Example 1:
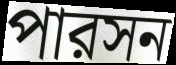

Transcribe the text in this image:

পারসন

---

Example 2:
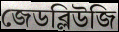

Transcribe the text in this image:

জেডব্লিউজি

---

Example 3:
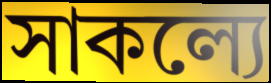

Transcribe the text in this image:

সাকল্যে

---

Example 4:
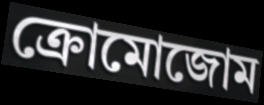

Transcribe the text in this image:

ক্রোমোজোম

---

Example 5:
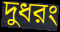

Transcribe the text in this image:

দুধরং